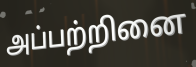
அப்பற்றினை